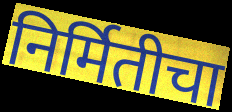
निर्मितीचा